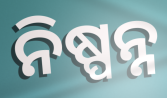
ନିଷ୍ପନ୍ନ